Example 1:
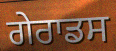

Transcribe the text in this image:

ਗੇਰਾਡਸ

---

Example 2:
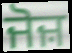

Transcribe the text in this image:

ਜੋਜ਼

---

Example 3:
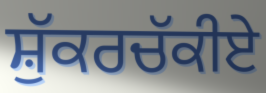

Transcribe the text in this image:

ਸ਼ੁੱਕਰਚੱਕੀਏ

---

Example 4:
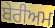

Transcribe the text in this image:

ਬੇਰੀਅਮ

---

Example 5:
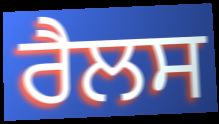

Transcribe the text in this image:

ਰੈਲਸ